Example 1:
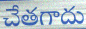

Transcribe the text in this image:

చేతగాదు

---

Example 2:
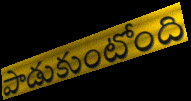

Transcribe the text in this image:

పాడుకుంటోంది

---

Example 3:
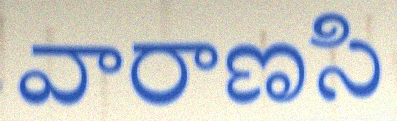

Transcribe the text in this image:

వారాణసి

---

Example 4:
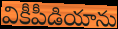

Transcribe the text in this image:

వికీపీడియాను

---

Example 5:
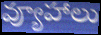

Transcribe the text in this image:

వ్యూహాలు